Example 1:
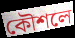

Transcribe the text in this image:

কৌশলে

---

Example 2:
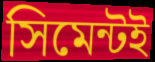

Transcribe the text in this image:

সিমেন্টই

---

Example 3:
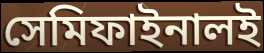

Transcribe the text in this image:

সেমিফাইনালই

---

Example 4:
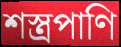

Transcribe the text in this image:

শস্ত্রপাণি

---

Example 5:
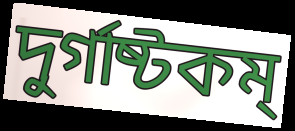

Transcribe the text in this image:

দুর্গাষ্টকম্